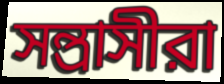
সন্ত্রাসীরা